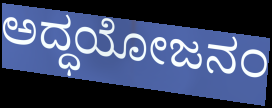
ಅದ್ಧಯೋಜನಂ